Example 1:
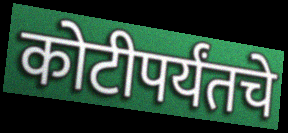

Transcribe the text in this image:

कोटीपर्यंतचे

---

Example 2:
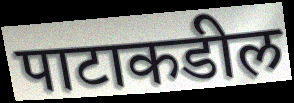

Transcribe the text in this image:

पाटाकडील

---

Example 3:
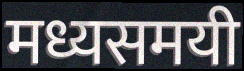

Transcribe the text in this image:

मध्यसमयी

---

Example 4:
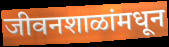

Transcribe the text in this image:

जीवनशाळांमधून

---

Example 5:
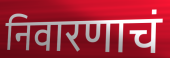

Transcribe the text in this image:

निवारणाचं